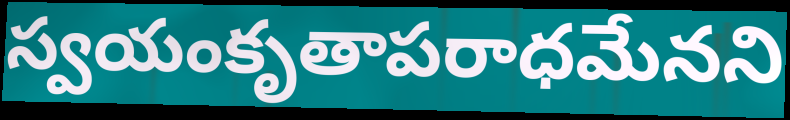
స్వయంకృతాపరాధమేనని